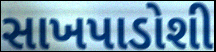
સાખપાડોશી